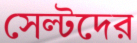
সেল্টদের